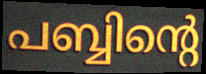
പബ്ബിന്റെ